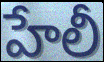
హేలీ